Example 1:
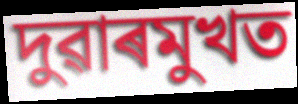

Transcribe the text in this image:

দুৱাৰমুখত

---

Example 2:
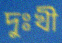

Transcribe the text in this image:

দুঃখী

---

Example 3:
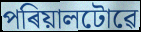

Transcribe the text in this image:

পৰিয়ালটোৱে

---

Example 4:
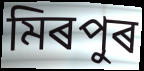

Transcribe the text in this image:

মিৰপুৰ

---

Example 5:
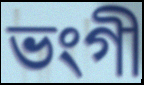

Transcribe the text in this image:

ভংগী